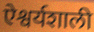
ऐश्वर्यशाली